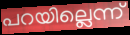
പറയില്ലെന്ന്